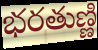
భరతుణ్ణి